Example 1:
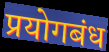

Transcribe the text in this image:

प्रयोगबंध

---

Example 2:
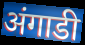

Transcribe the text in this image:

अंगाडी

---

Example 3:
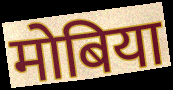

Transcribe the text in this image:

मोबिया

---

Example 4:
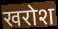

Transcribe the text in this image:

खरोश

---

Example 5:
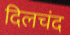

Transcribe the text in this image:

दिलचंद